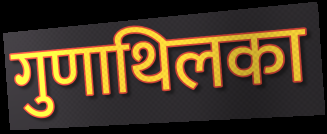
गुणाथिलका